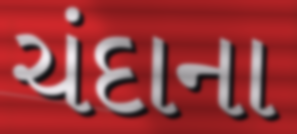
ચંદાના